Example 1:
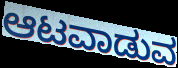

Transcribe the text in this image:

ಆಟವಾಡುವ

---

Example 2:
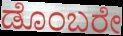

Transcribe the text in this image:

ಡೊಂಬರೇ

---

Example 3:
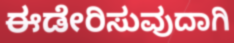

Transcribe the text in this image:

ಈಡೇರಿಸುವುದಾಗಿ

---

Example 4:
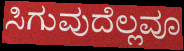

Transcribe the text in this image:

ಸಿಗುವುದೆಲ್ಲವೂ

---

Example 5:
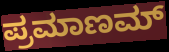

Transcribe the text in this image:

ಪ್ರಮಾಣಮ್